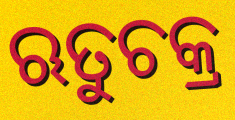
ଋତୁଚକ୍ର